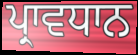
ਪ੍ਰਾਵਧਾਨ